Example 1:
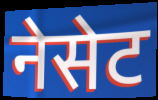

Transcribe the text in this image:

नेसेट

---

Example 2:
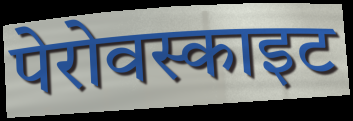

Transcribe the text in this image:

पेरोवस्काइट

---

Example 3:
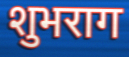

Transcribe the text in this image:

शुभराग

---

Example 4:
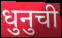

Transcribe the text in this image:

धुनुची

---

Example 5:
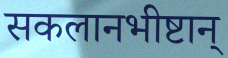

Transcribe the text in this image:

सकलानभीष्टान्